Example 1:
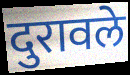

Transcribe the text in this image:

दुरावले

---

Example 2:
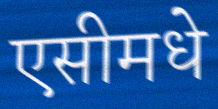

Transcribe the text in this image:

एसीमधे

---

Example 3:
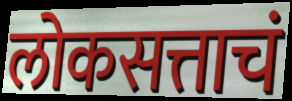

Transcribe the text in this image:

लोकसत्ताचं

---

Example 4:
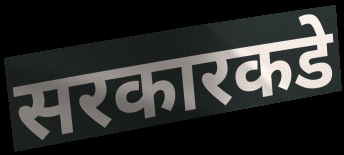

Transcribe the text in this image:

सरकारकडे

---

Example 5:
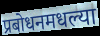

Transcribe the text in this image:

प्रबोधनमधल्या